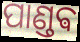
ପାଣ୍ଡଵ